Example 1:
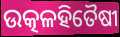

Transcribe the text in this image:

ଉତ୍କଳହିତୈଷୀ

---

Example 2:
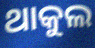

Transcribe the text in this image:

ଥାକୁଲ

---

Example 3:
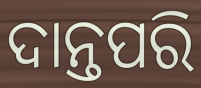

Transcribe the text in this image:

ଦାନ୍ତପରି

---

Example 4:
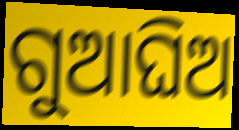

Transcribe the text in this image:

ଗୁଆଘିଅ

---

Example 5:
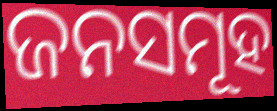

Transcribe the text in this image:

ଜନସମୂହ